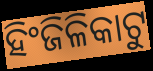
ହିଂଜିଳିକାଟୁ